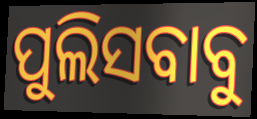
ପୁଲିସବାବୁ